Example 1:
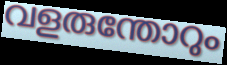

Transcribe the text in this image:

വളരുന്തോറും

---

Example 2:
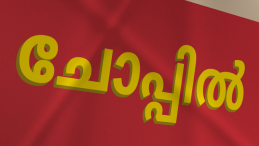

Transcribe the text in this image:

ചോപ്പിൽ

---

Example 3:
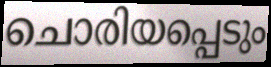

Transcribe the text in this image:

ചൊരിയപ്പെടും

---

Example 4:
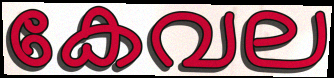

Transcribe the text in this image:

കേവല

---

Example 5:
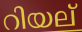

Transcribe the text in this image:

റിയല്